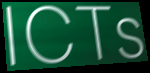
ICTs